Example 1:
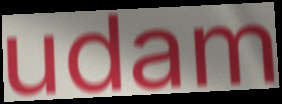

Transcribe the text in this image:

udam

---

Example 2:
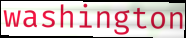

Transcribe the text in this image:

washington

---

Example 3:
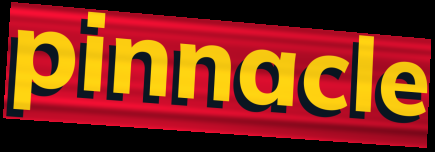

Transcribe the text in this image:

pinnacle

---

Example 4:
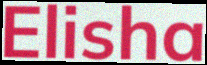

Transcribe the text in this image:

Elisha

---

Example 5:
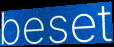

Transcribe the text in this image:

beset